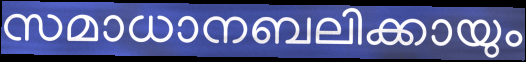
സമാധാനബലിക്കായും